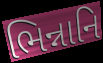
ભિન્નાનિ